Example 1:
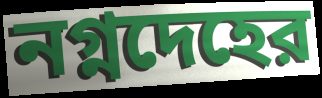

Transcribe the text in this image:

নগ্নদেহের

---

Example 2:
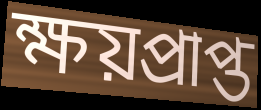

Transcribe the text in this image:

ক্ষয়প্রাপ্ত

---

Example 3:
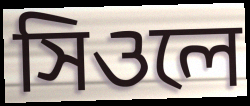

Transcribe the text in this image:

সিওলে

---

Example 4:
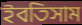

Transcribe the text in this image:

ইবতিসাম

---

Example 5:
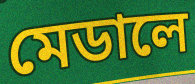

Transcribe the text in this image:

মেডালে